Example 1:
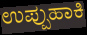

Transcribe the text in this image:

ಉಪ್ಪುಹಾಕಿ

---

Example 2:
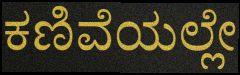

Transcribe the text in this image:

ಕಣಿವೆಯಲ್ಲೇ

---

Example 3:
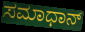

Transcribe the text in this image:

ಸಮಾಧಾನ್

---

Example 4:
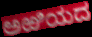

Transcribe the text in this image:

ಅಱಿಯದ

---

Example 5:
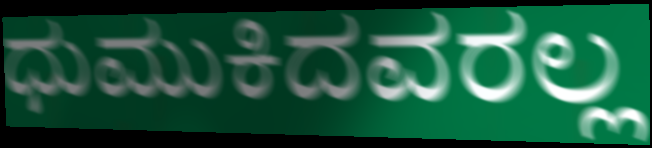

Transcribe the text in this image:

ಧುಮುಕಿದವರಲ್ಲ